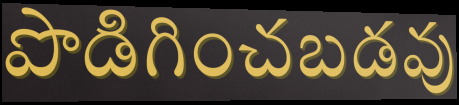
పొడిగించబడవు